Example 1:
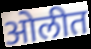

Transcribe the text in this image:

ओलीत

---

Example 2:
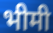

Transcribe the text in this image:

भीमी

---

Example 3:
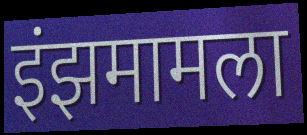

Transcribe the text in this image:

इंझमामला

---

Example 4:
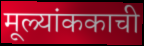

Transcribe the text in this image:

मूल्यांककाची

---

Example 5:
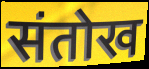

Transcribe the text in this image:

संतोख